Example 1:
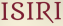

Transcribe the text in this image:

ISIRI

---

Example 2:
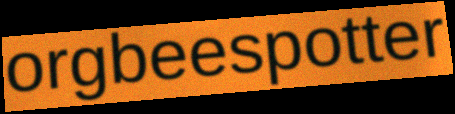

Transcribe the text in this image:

orgbeespotter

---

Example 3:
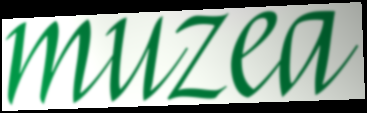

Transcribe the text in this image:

muzea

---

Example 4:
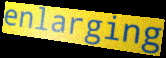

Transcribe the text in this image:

enlarging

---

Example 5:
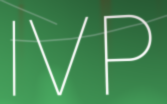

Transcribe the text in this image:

IVP